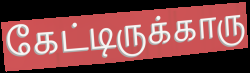
கேட்டிருக்காரு